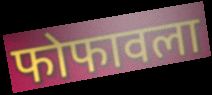
फोफावला